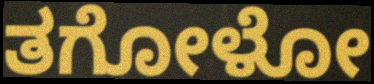
ತಗೋಳೋ